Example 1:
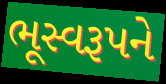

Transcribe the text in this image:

ભૂસ્વરૂપને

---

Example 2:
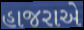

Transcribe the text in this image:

હાજરાએ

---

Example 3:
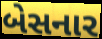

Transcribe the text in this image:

બેસનાર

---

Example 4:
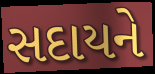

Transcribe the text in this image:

સદાયને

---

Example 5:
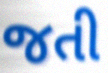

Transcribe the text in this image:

જતી